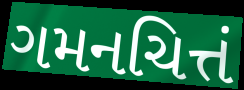
ગમનચિત્તં